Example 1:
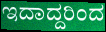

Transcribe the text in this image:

ಇದಾದ್ದರಿಂದ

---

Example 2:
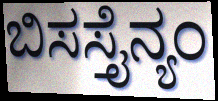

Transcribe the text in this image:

ಬಿಸಸ್ತೈನ್ಯಂ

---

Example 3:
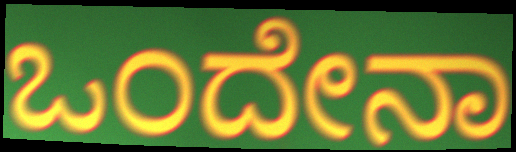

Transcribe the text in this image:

ಒಂದೇನಾ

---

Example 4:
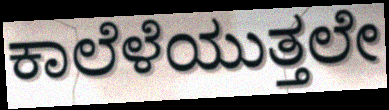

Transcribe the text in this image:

ಕಾಲೆಳೆಯುತ್ತಲೇ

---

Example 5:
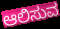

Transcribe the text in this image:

ಆಲಿಸುವ